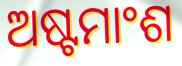
ଅଷ୍ଟମାଂଶ